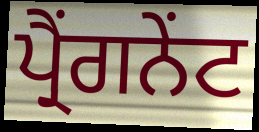
ਪ੍ਰੈਂਗਨੇਂਟ